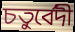
চতুৰ্বেদী